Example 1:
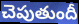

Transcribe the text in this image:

చెపుతుందీ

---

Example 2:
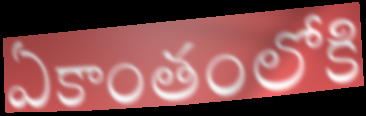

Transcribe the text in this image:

ఏకాంతంలోకి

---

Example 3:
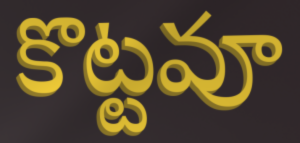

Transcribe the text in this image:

కొట్టవూ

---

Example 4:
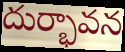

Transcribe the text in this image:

దుర్భావన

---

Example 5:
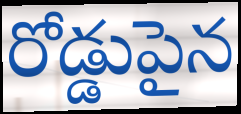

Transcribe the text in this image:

రోడ్డుపైన